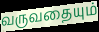
வருவதையும்